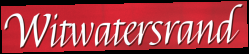
Witwatersrand